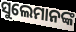
ସୁଲେମାନଙ୍କ